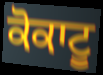
ਕੋਕਾਟੂ